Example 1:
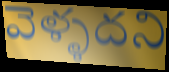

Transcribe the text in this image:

వెళ్ళదని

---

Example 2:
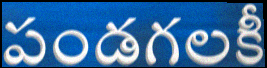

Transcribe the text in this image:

పండగలకీ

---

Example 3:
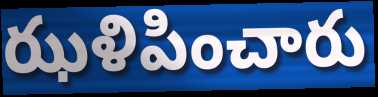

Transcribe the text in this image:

ఝళిపించారు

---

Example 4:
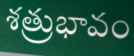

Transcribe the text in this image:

శత్రుభావం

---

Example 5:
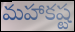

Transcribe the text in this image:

మహాకష్ట